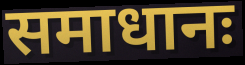
समाधानः